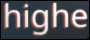
highe